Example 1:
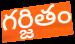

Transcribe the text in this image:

గర్జితం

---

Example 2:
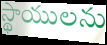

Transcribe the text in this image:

స్థాయులను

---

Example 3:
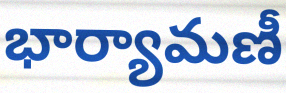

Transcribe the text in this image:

భార్యామణీ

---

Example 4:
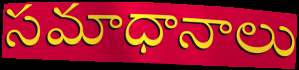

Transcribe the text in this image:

సమాధానాలు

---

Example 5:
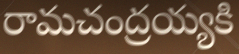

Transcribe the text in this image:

రామచంద్రయ్యకి